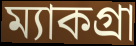
ম্যাকগ্রা